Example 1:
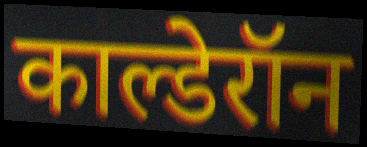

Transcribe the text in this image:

काल्डेरॉन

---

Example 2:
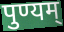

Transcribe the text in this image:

पुण्यम्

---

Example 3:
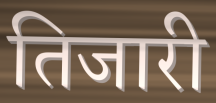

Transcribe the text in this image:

तिजारी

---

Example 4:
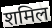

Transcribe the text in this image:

शमिल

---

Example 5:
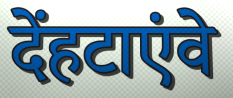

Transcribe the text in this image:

देंहटाएंवे